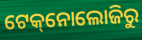
ଟେକ୍‌ନୋଲୋଜିରୁ